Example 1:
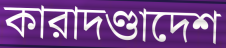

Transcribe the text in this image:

কারাদণ্ডাদেশ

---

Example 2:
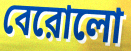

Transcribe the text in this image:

বেরোলো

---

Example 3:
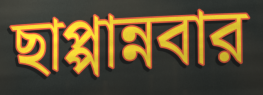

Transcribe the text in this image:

ছাপ্পান্নবার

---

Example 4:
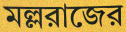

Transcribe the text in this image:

মল্লরাজের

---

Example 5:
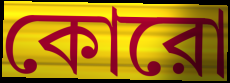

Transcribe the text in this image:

কোরো